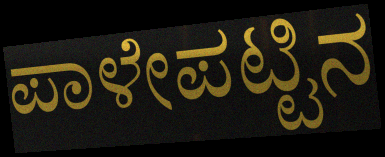
ಪಾಳೇಪಟ್ಟಿನ